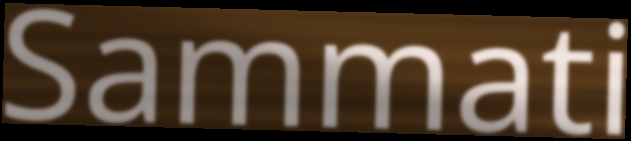
Sammati